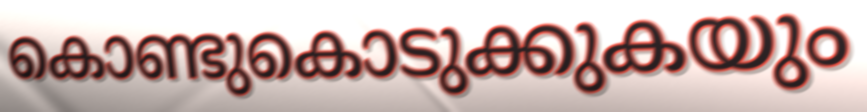
കൊണ്ടുകൊടുക്കുകയും